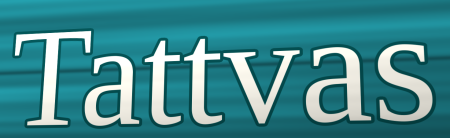
Tattvas